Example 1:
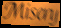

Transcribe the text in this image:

Misery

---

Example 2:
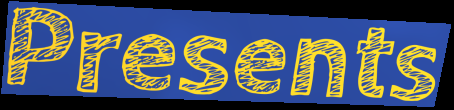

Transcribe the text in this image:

Presents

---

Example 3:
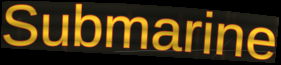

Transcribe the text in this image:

Submarine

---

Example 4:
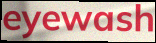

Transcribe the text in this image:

eyewash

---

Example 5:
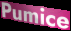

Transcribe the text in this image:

Pumice